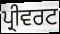
ਪ੍ਰੀਵਰਟ